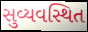
સુવ્યવસ્થિત